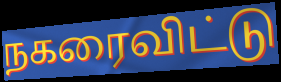
நகரைவிட்டு